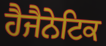
ਹੈਜੈਨੇਟਿਕ